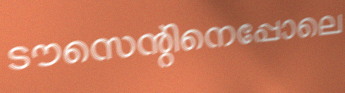
ടൗസെന്റിനെപ്പോലെ